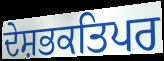
ਦੇਸ਼ਭਕਤਿਪਰ